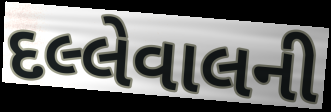
દલ્લેવાલની